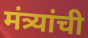
मंत्र्यांची